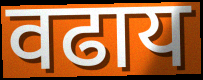
वढाय